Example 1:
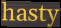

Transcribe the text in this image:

hasty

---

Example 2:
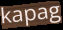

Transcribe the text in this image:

kapag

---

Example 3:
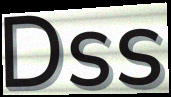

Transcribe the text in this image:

Dss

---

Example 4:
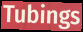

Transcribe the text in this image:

Tubings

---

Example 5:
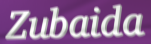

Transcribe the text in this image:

Zubaida